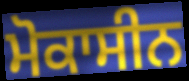
ਮੋਕਾਸੀਨ